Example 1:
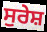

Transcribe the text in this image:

ਸੁਰੇਸ਼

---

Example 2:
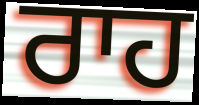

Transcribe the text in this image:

ਰਾਹ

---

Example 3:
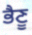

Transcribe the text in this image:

ਭੈਣੂ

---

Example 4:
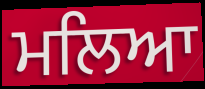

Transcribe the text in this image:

ਮਲਿਆ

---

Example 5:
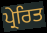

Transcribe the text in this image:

ਪ੍ਰੇਰਿਤ